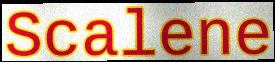
Scalene